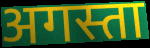
अगस्ता